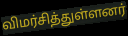
விமர்சித்துள்ளனர்